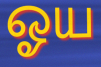
ஓய